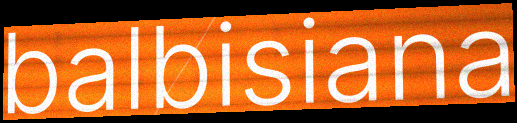
balbisiana